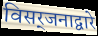
विसर्जनाद्वारे